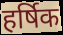
हर्षिक